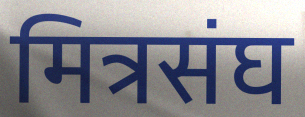
मित्रसंघ